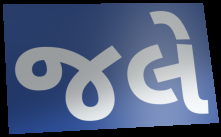
જલે